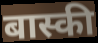
बास्की